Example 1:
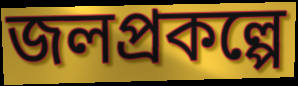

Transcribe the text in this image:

জলপ্রকল্পে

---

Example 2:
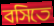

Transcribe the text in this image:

বসিতে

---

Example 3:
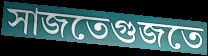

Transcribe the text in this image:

সাজতেগুজতে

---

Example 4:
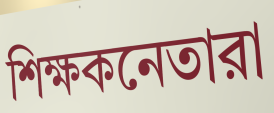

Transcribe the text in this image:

শিক্ষকনেতারা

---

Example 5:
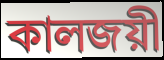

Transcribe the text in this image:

কালজয়ী